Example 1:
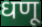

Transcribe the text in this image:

धणू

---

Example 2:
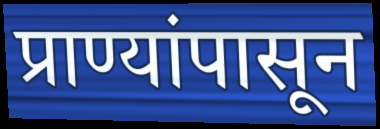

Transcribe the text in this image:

प्राण्यांपासून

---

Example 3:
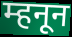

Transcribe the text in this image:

म्हनून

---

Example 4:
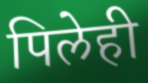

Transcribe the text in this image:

पिलेही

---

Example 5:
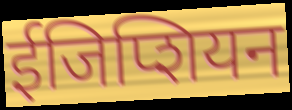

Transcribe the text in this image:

ईजिप्शियन